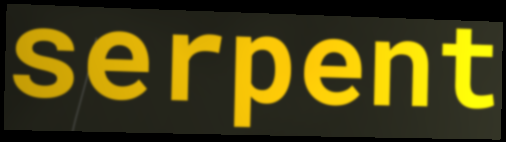
serpent